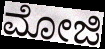
ಮೋಜಿ